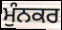
ਮੁੰਨਕਰ